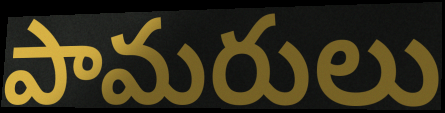
పామరులు